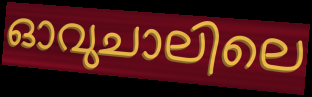
ഓവുചാലിലെ